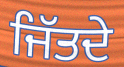
ਜਿੱਤਦੇ